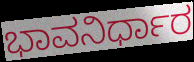
ಭಾವನಿರ್ಧಾರ